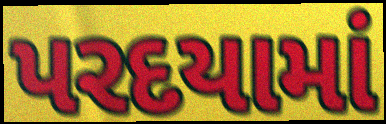
પરદયામાં